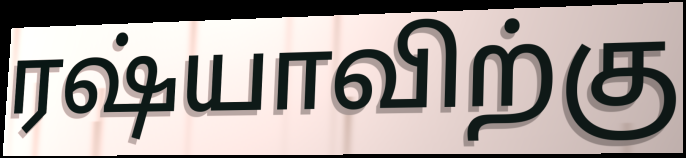
ரஷ்யாவிற்கு